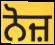
ਨੋਜ਼